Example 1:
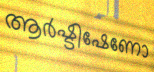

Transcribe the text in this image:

ആർഷ്ടിഷേണോ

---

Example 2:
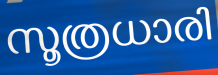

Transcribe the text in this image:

സൂത്രധാരി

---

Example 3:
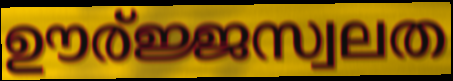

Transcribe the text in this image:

ഊര്ജ്ജസ്വലത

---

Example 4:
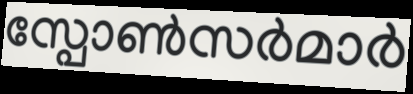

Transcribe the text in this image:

സ്പോൺസർമാർ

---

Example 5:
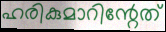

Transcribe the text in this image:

ഹരികുമാറിന്റേത്